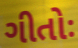
ગીતોઃ